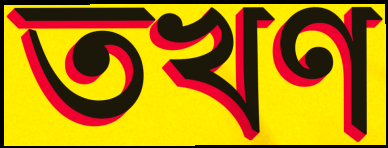
তখণ